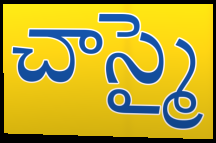
చాస్మై